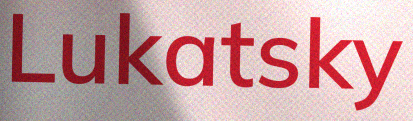
Lukatsky